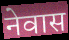
नेवास